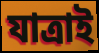
যাত্ৰাই